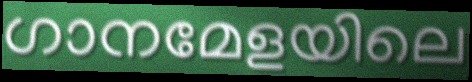
ഗാനമേളയിലെ